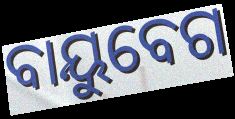
ବାୟୁବେଗ